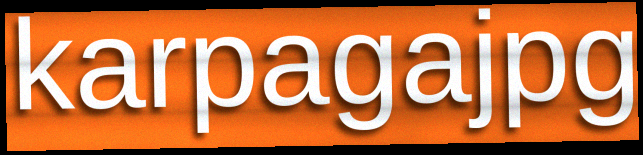
karpagajpg